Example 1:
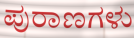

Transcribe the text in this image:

ಪುರಾಣಗಳು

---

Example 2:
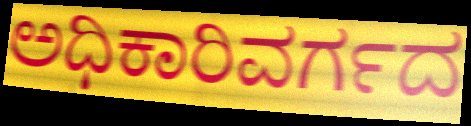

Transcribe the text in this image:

ಅಧಿಕಾರಿವರ್ಗದ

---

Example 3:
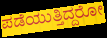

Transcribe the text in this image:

ಪಡೆಯುತ್ತಿದ್ದರೋ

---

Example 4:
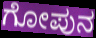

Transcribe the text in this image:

ಗೋಪುನ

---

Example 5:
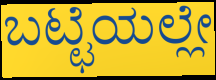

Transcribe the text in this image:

ಬಟ್ಟೆಯಲ್ಲೇ